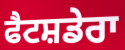
ਫੈਟਸ਼ਡੇਰਾ